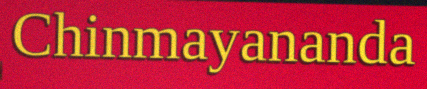
Chinmayananda